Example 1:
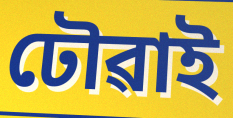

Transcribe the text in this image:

ঢৌৱাই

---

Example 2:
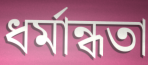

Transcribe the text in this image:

ধৰ্মান্ধতা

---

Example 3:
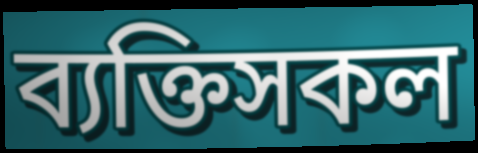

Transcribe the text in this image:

ব্যক্তিসকল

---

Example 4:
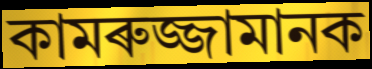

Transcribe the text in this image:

কামৰুজ্জামানক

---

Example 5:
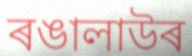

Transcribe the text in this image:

ৰঙালাউৰ